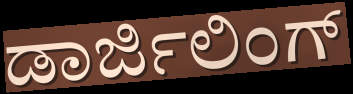
ಡಾರ್ಜಿಲಿಂಗ್